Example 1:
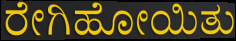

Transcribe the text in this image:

ರೇಗಿಹೋಯಿತು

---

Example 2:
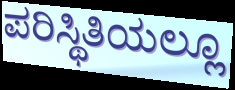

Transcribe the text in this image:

ಪರಿಸ್ಥಿತಿಯಲ್ಲೂ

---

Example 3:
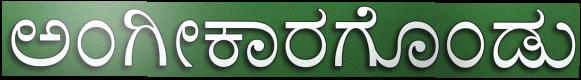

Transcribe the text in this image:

ಅಂಗೀಕಾರಗೊಂಡು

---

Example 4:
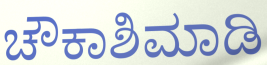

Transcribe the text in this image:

ಚೌಕಾಶಿಮಾಡಿ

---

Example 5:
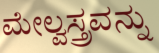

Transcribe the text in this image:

ಮೇಲ್ವಸ್ತ್ರವನ್ನು